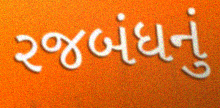
રજબંધનું